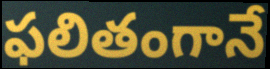
ఫలితంగానే